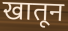
खातून